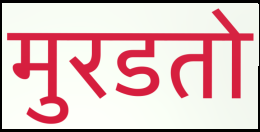
मुरडतो